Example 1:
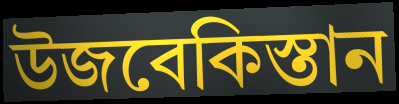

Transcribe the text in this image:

উজবেকিস্তান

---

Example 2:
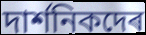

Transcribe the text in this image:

দাৰ্শনিকদেৰ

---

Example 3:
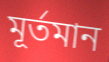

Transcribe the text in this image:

মূৰ্তমান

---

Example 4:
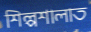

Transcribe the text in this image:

শিল্পশালাত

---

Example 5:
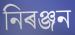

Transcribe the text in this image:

নিৰঞ্জন